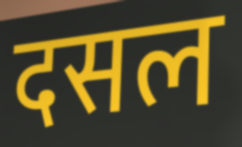
दसल